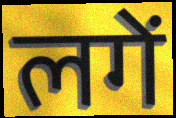
लगें